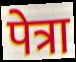
पेत्रा